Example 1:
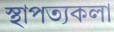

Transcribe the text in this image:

স্থাপত্যকলা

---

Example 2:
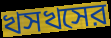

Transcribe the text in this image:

খসখসের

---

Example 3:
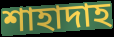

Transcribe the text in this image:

শাহাদাহ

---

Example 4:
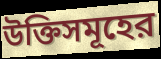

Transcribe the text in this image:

উক্তিসমূহের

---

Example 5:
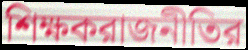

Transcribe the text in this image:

শিক্ষকরাজনীতির